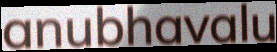
anubhavalu